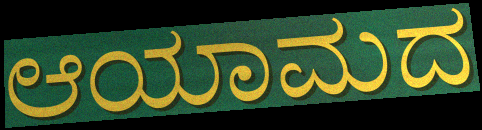
ಆಯಾಮದ